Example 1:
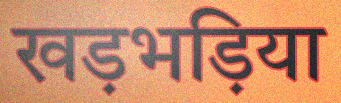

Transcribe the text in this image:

खड़भड़िया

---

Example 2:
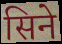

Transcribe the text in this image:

सिने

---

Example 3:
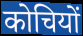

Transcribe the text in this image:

कोचियों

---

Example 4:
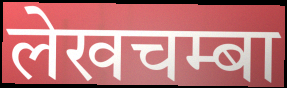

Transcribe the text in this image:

लेखचम्बा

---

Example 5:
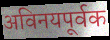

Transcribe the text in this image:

अविनयपूर्वक